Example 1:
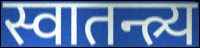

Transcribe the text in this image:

स्वातन्त्र्य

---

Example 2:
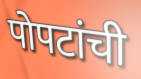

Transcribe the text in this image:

पोपटांची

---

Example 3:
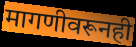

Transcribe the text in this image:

मागणीवरूनही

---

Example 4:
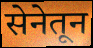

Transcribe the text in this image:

सेनेतून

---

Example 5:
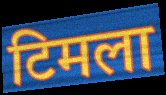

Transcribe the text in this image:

टिमला